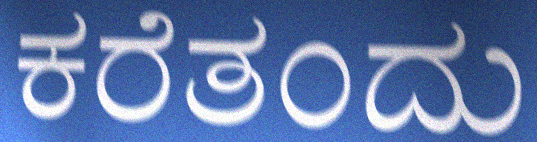
ಕರೆತಂದು